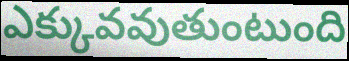
ఎక్కువవుతుంటుంది